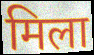
मिला